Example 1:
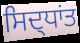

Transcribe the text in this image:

ਸਿਦ੍ਧਾਂਤ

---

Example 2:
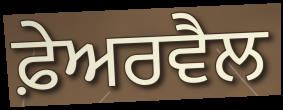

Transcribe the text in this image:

ਫ਼ੇਅਰਵੈਲ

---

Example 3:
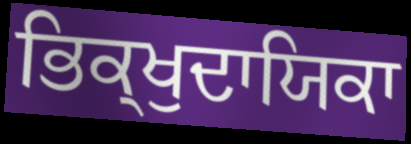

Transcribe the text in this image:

ਭਿਕ੍ਖੁਦਾਯਿਕਾ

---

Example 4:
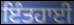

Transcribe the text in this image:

ਇੰਤਹਾਈ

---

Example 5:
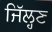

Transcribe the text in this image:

ਜਿੱਲ੍ਹਣ